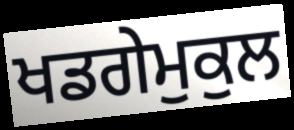
ਖਡਗੇਮੁਕੁਲ